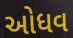
ઓધવ